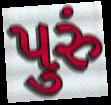
પુરું